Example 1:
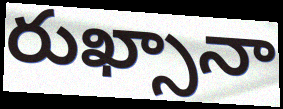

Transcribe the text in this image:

రుఖ్సానా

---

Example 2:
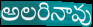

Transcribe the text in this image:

అలరినావు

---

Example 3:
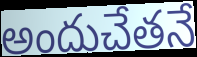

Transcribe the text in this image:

అందుచేతనే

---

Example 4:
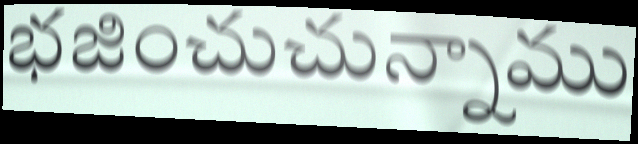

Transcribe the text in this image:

భజించుచున్నాము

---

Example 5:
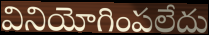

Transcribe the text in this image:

వినియోగింపలేదు